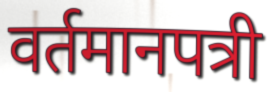
वर्तमानपत्री